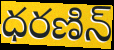
ధరణిన్